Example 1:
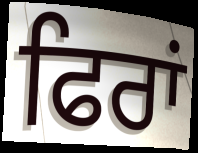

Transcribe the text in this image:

ਫਿਰਾਂ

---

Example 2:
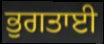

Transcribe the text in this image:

ਭੁਗਤਾਈ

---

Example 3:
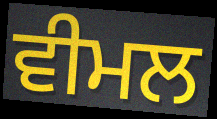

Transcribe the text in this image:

ਵੀਮਲ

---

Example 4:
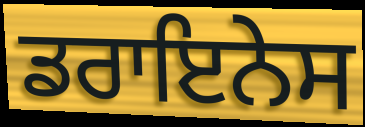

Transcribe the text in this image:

ਡਰਾਇਨੇਸ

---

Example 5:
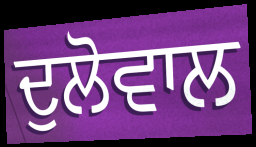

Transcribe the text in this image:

ਦੁਲੋਵਾਲ